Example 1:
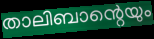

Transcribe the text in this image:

താലിബാന്റെയും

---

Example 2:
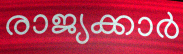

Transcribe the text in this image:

രാജ്യക്കാർ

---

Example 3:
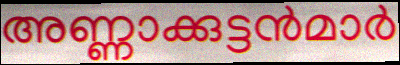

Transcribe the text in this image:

അണ്ണാക്കുട്ടൻമാർ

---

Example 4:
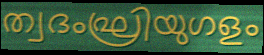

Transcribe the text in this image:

ത്വദംഘ്രിയുഗളം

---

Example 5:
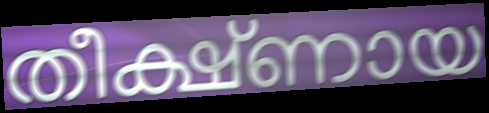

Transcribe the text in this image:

തീക്ഷ്ണായ